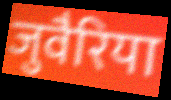
जुवैरिया